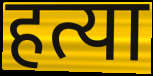
हत्या